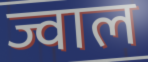
ज्वाल